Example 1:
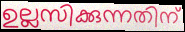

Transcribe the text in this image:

ഉല്ലസിക്കുന്നതിന്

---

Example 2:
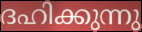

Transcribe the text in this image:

ദഹിക്കുന്നു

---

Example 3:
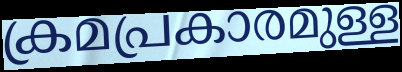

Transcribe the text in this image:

ക്രമപ്രകാരമുള്ള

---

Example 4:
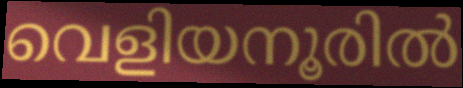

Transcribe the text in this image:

വെളിയനൂരിൽ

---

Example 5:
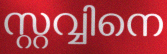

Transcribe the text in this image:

സ്റ്റവ്വിനെ